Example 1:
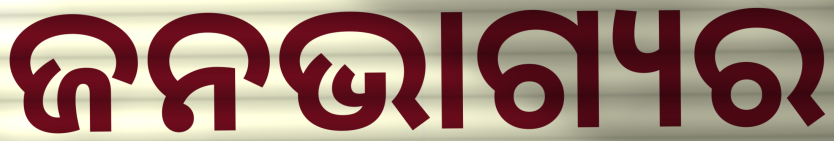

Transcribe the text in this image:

ଜନଭାଗ୍ୟର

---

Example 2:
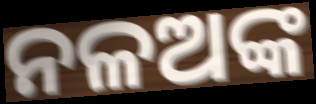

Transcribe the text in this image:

ନଳଅଙ୍କ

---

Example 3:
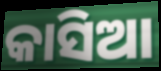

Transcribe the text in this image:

କାସିଆ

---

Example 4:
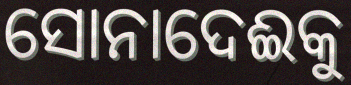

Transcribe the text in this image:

ସୋନାଦେଈକୁ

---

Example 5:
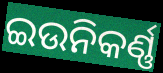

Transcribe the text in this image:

ଇଉନିକର୍ଣ୍ଣ